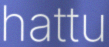
hattu